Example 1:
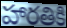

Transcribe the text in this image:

హారతికి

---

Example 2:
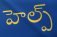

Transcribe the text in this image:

హెల్ప్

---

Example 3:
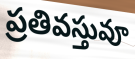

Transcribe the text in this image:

ప్రతివస్తువూ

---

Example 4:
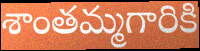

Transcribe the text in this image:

శాంతమ్మగారికి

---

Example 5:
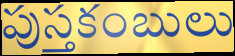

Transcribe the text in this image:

పుస్తకంబులు